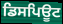
ਡਿਸਪਿਊਟ